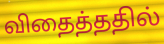
விதைத்ததில்